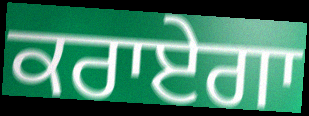
ਕਰਾਏਗਾ